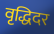
वृद्धिदर